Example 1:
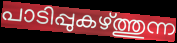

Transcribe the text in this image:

പാടിപ്പുകഴ്ത്തുന്ന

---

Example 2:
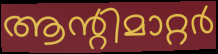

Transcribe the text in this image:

ആന്റിമാറ്റർ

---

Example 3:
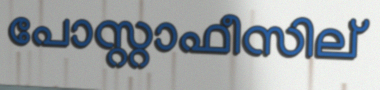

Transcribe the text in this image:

പോസ്റ്റാഫീസില്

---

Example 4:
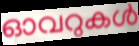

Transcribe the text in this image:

ഓവറുകൾ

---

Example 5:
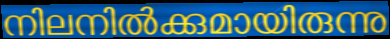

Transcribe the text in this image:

നിലനിൽക്കുമായിരുന്നു